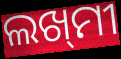
ଲଖ୍‌ମୀ